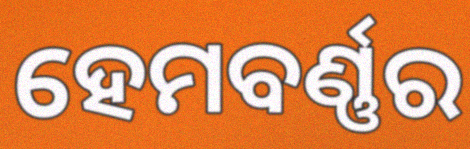
ହେମବର୍ଣ୍ଣର